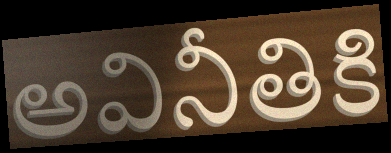
అవినీతికి